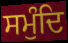
ਸਮੁੰਦਿ